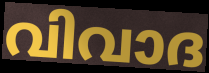
വിവാദ